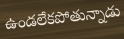
ఉండలేకపోతున్నాడు